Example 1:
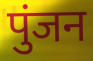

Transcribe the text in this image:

पुंजन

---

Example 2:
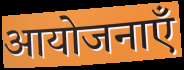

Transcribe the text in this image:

आयोजनाएँ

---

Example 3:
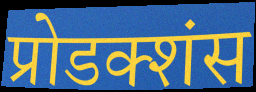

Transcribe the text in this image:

प्रोडक्शंस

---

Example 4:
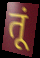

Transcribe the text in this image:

तूं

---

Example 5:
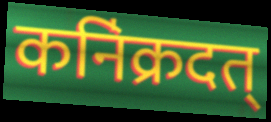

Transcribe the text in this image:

कनि॑क्रदत्